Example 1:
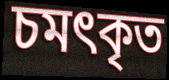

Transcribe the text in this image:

চমৎকৃত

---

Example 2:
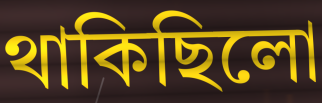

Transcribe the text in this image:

থাকিছিলো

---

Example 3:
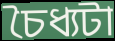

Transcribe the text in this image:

চৈধ্যটা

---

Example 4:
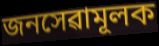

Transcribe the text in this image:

জনসেৱামূলক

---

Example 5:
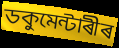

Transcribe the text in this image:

ডকুমেন্টাৰীৰ